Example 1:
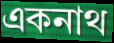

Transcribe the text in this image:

একনাথ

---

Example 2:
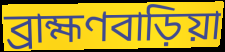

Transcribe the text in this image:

ব্রাহ্মণবাড়িয়া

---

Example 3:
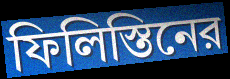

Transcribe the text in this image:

ফিলিস্তিনের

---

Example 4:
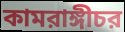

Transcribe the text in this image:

কামরাঙ্গীচর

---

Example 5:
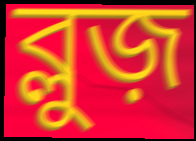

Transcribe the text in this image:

ব্লুজ়